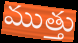
ముత్తు